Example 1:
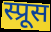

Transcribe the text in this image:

स्प्रूस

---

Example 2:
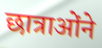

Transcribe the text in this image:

छात्राओंने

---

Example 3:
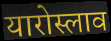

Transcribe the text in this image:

यारोस्लाव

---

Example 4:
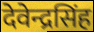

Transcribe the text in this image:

देवेन्द्रसिंह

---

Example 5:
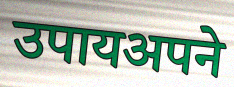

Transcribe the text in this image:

उपायअपने